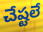
చేష్టలే